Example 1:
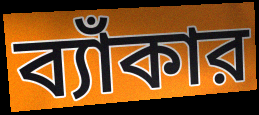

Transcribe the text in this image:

ব্যাঁকার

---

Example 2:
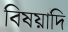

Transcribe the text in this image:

বিষয়াদি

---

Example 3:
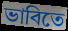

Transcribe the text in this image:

ভাবিতে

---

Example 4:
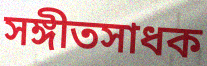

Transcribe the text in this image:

সঙ্গীতসাধক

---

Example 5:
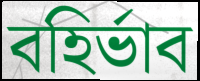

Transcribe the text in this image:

বহির্ভাব